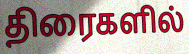
திரைகளில்